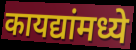
कायद्यांमध्ये